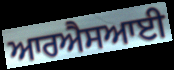
ਆਰਐਸਆਈ